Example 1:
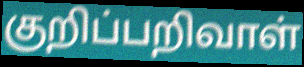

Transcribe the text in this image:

குறிப்பறிவாள்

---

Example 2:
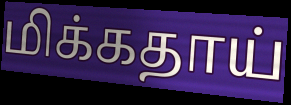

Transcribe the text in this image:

மிக்கதாய்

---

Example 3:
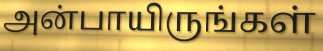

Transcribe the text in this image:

அன்பாயிருங்கள்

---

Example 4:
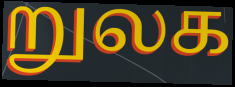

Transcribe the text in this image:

றுலக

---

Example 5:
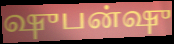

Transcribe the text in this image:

ஷுபன்ஷு